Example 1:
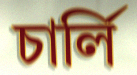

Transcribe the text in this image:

চাৰ্লি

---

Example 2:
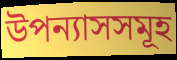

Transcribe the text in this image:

উপন্যাসসমূহ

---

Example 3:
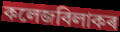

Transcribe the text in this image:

কলেজবিলাকৰ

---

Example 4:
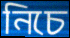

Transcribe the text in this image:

নিচে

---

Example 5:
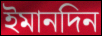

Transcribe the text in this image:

ইমানদিন